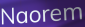
Naorem